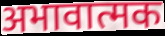
अभावात्मक